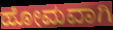
ಹೋಮವಾಗಿ